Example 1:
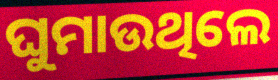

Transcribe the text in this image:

ଘୁମାଉଥିଲେ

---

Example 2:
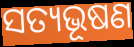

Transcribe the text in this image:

ସତ୍ୟଭୂଷଣ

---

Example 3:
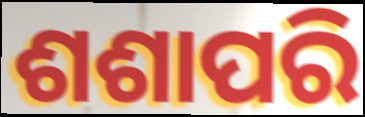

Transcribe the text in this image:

ଶଶାପରି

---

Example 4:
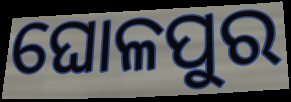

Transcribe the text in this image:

ଘୋଳପୁର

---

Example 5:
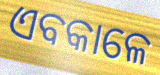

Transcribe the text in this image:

ଏବକାଳେ